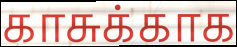
காசுக்காக